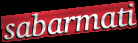
sabarmati